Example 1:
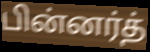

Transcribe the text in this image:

பின்னர்த்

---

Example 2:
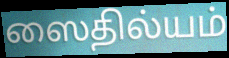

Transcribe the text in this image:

ஸைதில்யம்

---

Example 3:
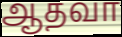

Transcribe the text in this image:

ஆதவா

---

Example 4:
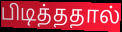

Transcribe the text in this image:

பிடித்ததால்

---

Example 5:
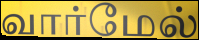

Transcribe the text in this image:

வார்மேல்